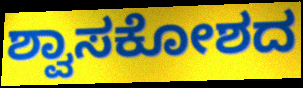
ಶ್ವಾಸಕೋಶದ